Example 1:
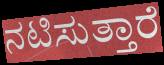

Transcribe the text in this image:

ನಟಿಸುತ್ತಾರೆ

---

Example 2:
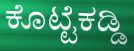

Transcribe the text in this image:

ಕೊಟ್ಟೆಕಡ್ಡಿ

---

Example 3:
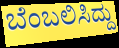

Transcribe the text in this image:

ಬೆಂಬಲಿಸಿದ್ದು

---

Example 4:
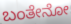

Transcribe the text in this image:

ಬಂತೇನೋ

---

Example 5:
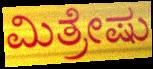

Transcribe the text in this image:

ಮಿತ್ರೇಷು